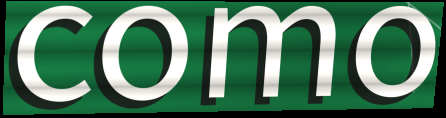
como